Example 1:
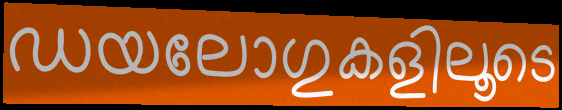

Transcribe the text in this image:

ഡയലോഗുകളിലൂടെ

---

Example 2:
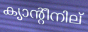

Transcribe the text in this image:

ക്യാന്റീനില്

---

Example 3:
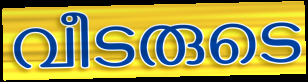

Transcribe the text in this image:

വീടരുടെ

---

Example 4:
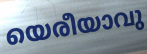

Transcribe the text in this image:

യെരീയാവു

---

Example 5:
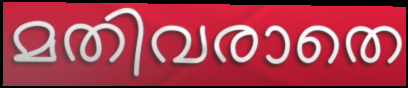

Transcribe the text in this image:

മതിവരാതെ